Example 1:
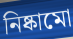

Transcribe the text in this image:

নিষ্কামো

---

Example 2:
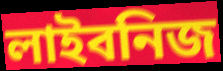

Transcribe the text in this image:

লাইবনিজ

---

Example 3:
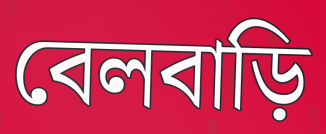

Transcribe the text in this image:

বেলবাড়ি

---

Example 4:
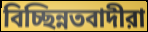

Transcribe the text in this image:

বিচ্ছিন্নতবাদীরা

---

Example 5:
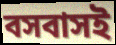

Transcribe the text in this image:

বসবাসই